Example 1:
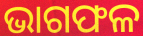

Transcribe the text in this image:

ଭାଗଫଳ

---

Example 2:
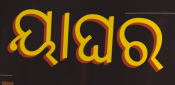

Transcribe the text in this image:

ୟାଘର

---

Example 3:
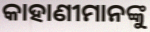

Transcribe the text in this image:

କାହାଣୀମାନଙ୍କୁ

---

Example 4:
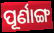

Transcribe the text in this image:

ପୂର୍ଣାଙ୍ଗ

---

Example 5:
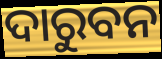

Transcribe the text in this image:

ଦାରୁବନ